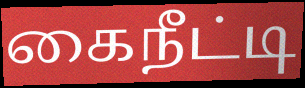
கைநீட்டி